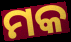
ମକ